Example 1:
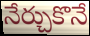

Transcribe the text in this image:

నేర్చుకొనే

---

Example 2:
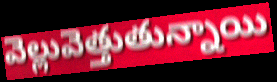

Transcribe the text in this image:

వెల్లువెత్తుతున్నాయి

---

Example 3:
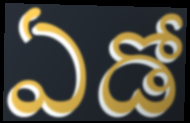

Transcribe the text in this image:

ఏడో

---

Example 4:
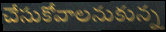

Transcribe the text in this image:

చేసుకోవాలనుకున్న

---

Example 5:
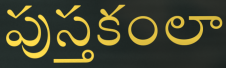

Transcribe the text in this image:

పుస్తకంలా